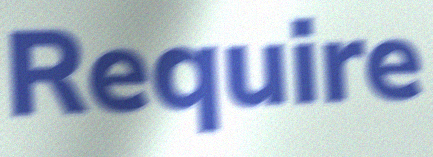
Require